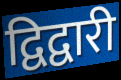
द्विद्वारी